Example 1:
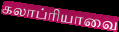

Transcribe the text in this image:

கலாப்ரியாவை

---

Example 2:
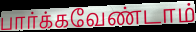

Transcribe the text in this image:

பார்க்கவேண்டாம்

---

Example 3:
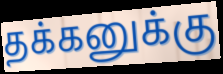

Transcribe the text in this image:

தக்கனுக்கு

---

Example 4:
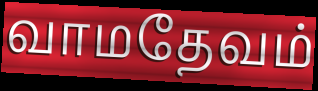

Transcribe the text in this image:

வாமதேவம்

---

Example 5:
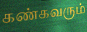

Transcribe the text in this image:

கண்கவரும்